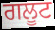
ਗਲੂਟ